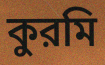
কুরমি